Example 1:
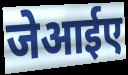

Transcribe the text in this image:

जेआईए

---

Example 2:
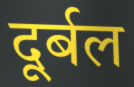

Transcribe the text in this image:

दूर्बल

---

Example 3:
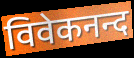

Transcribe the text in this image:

विवेकनन्द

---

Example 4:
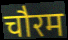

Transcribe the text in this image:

चौरम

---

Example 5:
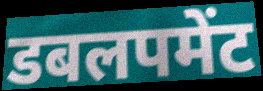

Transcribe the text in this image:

डबलपमेंट